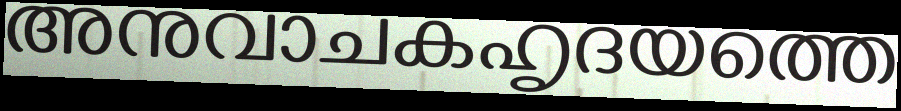
അനുവാചകഹൃദയത്തെ